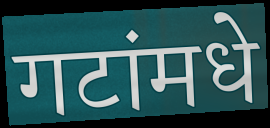
गटांमधे